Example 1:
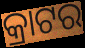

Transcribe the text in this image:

କ୍ରାଟର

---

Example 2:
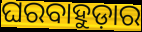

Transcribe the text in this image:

ଘରବାହୁଡ଼ାର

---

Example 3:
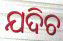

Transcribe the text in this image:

ଯଦିଚ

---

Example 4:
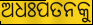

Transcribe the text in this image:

ଅଧଃପତନକୁ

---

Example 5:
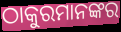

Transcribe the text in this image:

ଠାକୁରମାନଙ୍କର